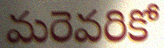
మరెవరికో